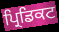
ਪ੍ਰਿਡਿਕਟ